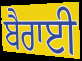
ਬੈਰਾਈ